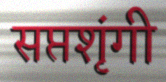
सप्तशृंगी